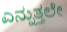
ಎನ್ನುತ್ತಲೇ